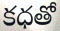
కధతో